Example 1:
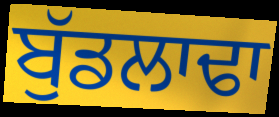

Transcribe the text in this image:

ਬੁੱਡਲਾਢਾ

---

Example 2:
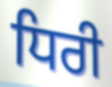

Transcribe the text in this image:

ਧਿਰੀ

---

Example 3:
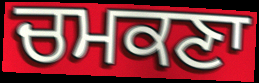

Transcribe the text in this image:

ਚਮਕਣਾ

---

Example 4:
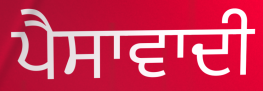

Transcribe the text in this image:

ਪੈਸਾਵਾਦੀ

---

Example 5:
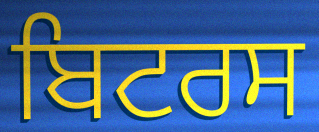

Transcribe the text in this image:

ਬਿਟਰਸ